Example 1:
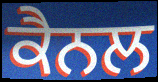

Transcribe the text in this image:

ਕੈਨਲ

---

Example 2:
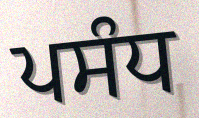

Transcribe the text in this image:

ਪਸੰਧ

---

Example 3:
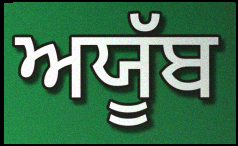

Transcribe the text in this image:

ਅਯੂੱਬ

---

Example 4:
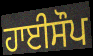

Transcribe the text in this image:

ਹਾਈਸੌਪ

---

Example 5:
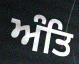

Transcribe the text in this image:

ਅੰਤਿ